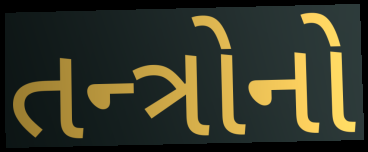
તન્ત્રોનો